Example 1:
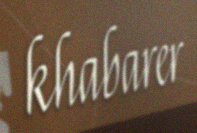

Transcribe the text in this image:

khabarer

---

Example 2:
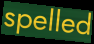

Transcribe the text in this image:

spelled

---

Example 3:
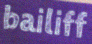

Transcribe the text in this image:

bailiff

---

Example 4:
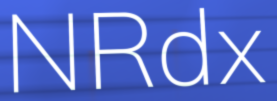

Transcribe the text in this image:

NRdx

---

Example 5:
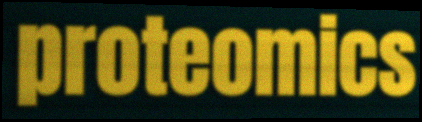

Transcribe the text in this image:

proteomics